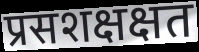
प्रसशक्षक्षत